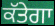
ਕੱਤੇਗਾ